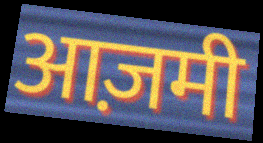
आज़मी